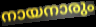
നായനാരും